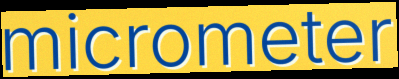
micrometer